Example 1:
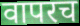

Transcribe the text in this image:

वापरच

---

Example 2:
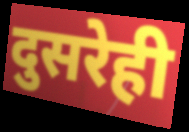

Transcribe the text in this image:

दुसरेही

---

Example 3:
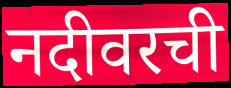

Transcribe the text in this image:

नदीवरची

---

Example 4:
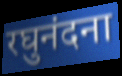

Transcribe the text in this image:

रघुनंदना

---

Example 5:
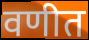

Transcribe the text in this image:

वणीत